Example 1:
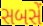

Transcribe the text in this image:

સબસેં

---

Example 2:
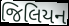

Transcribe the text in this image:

જિલિયન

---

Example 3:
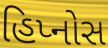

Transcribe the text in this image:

હિપ્નોસ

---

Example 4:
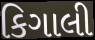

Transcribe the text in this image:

કિગાલી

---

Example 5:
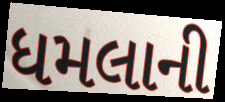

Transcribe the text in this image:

ધમલાની